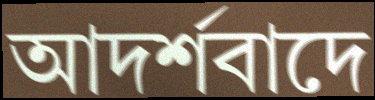
আদর্শবাদে